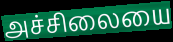
அச்சிலையை